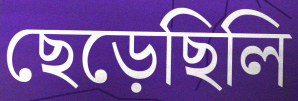
ছেড়েছিলি